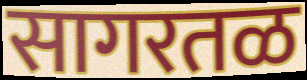
सागरतळ